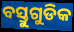
ବସ୍ତୁଗୁଡିକ